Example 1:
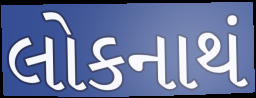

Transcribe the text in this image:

લોકનાથં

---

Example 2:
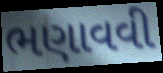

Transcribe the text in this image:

ભણાવવી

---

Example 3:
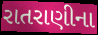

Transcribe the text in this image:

રાતરાણીના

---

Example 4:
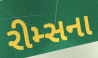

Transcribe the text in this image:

રીમ્સના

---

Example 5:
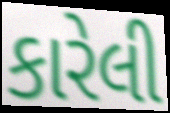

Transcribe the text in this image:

કારેલી